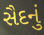
સૈદનું